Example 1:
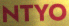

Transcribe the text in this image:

NTYO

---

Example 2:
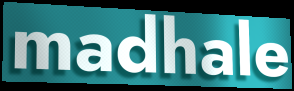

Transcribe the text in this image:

madhale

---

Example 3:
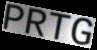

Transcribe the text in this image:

PRTG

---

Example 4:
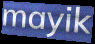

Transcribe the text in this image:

mayik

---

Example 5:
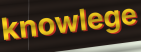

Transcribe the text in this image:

knowlege